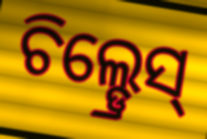
ଚିଲ୍ଡ୍ରେସ୍